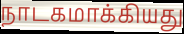
நாடகமாக்கியது